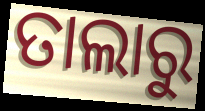
ତାଲାରୁ